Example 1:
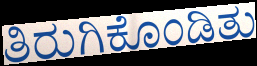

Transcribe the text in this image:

ತಿರುಗಿಕೊಂಡಿತು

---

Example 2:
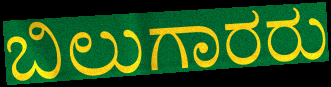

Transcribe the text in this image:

ಬಿಲುಗಾರರು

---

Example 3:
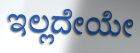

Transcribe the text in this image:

ಇಲ್ಲದೇಯೇ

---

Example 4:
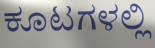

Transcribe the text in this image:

ಕೂಟಗಳಲ್ಲಿ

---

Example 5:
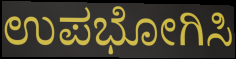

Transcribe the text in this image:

ಉಪಭೋಗಿಸಿ